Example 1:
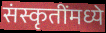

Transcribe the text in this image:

संस्कृतींमध्ये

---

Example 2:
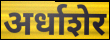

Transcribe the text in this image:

अर्धाशेर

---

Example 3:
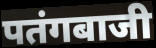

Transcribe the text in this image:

पतंगबाजी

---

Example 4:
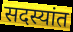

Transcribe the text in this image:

सदस्यांत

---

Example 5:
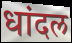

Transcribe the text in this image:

धांदल